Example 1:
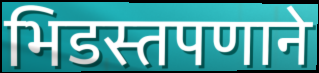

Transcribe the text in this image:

भिडस्तपणाने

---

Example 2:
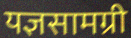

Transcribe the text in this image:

यज्ञसामग्री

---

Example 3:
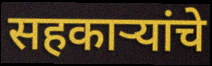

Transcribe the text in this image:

सहकार्‍यांचे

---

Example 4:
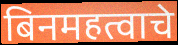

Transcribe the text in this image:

बिनमहत्वाचे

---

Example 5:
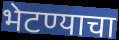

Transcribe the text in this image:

भेटण्याचा